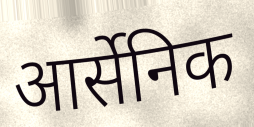
आर्सेनिक